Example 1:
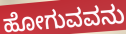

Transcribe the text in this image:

ಹೋಗುವವನು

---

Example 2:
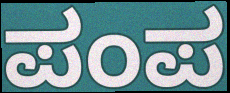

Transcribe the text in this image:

ಪಂಪ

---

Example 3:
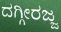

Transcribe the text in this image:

ದಗ್ಗೀರಜ್ಜ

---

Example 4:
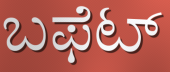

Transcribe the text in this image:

ಬಫೆಟ್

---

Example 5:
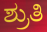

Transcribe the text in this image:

ಶ್ರುತಿ